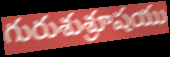
గురుశుశ్రూషయు